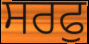
ਸਰਫੁ